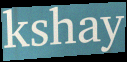
kshay